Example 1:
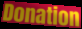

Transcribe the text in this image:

Donation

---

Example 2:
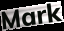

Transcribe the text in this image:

Mark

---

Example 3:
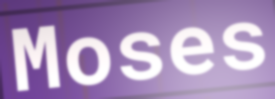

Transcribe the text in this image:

Moses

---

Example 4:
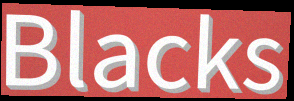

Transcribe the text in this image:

Blacks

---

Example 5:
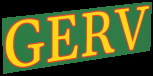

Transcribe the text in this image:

GERV